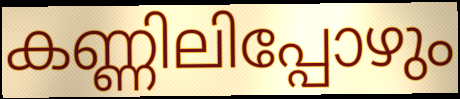
കണ്ണിലിപ്പോഴും